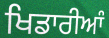
ਖਿਡਾਰੀਆੰ